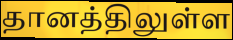
தானத்திலுள்ள